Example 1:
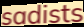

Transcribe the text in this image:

sadists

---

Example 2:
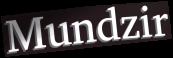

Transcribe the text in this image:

Mundzir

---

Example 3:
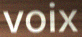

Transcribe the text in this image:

voix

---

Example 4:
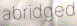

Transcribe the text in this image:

abridged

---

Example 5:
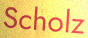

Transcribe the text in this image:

Scholz